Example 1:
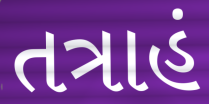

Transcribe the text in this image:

તત્રાહં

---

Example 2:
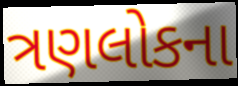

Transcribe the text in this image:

ત્રણલોકના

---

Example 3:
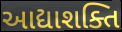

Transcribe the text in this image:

આદ્યાશક્તિ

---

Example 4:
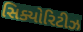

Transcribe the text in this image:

સિક્યોરિટીઝ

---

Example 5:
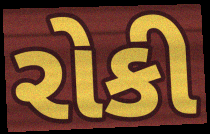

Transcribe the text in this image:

રોકી